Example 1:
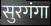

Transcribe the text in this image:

सुरगंगा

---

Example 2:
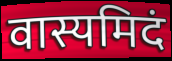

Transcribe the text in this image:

वास्यमिदं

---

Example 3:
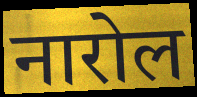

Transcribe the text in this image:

नारोल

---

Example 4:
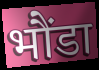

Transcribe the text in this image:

भौंडा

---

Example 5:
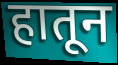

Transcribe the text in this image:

हातून